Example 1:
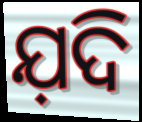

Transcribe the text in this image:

ଯ଼ଦି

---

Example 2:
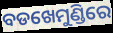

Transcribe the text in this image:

ବଡଖେମୁଣ୍ଡିରେ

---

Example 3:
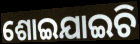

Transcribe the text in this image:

ଶୋଇଯାଇଚି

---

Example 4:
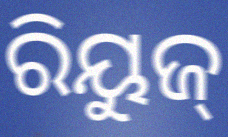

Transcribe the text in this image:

ରିୟୁଜ୍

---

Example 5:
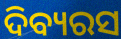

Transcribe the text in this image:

ଦିବ୍ୟରସ